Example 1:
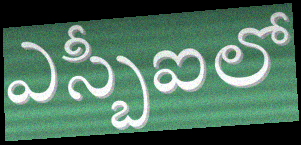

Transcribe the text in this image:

ఎస్బీఐలో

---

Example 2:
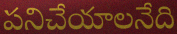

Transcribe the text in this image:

పనిచేయాలనేది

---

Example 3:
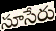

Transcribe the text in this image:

సూసేరు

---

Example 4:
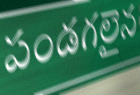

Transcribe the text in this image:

పండగలైన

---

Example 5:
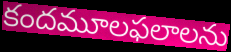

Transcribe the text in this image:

కందమూలఫలాలను